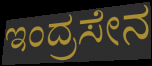
ಇಂದ್ರಸೇನ